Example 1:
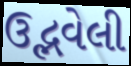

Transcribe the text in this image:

ઉદ્ભવેલી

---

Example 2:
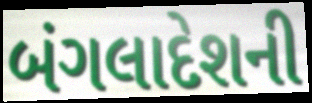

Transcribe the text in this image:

બંગલાદેશની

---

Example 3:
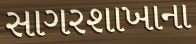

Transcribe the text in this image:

સાગરશાખાના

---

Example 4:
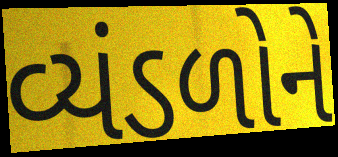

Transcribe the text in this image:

વ્યંડળોને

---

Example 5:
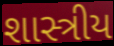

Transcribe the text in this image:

શાસ્ત્રીય